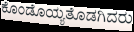
ಕೊಂಡೊಯ್ಯತೊಡಗಿದರು